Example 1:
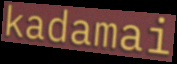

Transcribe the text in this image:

kadamai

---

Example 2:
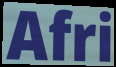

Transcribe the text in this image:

Afri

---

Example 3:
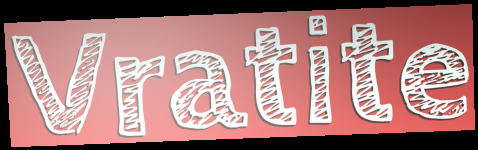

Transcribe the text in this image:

Vratite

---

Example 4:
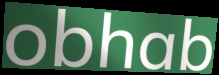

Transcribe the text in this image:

obhab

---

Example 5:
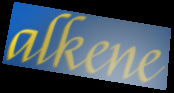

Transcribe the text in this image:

alkene